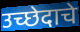
उच्छेदाचे